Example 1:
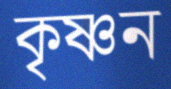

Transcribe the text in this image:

কৃষ্ণন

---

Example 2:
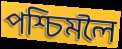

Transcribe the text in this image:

পশ্চিমলৈ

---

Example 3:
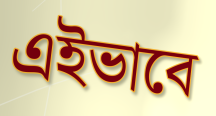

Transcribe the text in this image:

এইভাবে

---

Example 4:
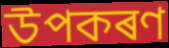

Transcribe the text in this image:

উপকৰণ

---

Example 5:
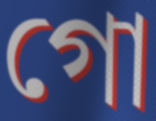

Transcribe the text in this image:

গো